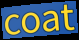
coat